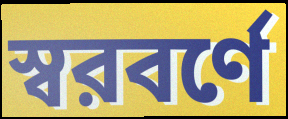
স্বরবর্ণে